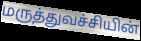
மருத்துவச்சியின்